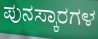
ಪುನಸ್ಕಾರಗಳ